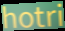
hotri